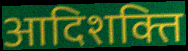
आदिशक्ति